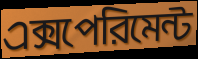
এক্সপেরিমেন্ট